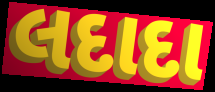
લદાદા